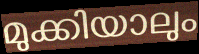
മുക്കിയാലും